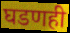
घडणही